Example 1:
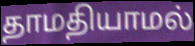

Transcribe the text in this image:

தாமதியாமல்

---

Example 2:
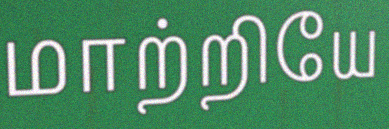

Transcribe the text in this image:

மாற்றியே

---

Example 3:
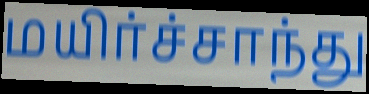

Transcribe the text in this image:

மயிர்ச்சாந்து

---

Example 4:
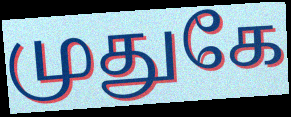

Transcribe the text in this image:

முதுகே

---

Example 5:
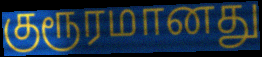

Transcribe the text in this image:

குரூரமானது